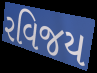
રવિજય